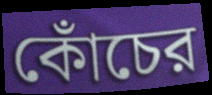
কোঁচের